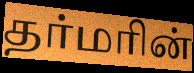
தர்மரின்